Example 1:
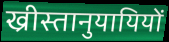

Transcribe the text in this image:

ख्रीस्तानुयायियों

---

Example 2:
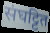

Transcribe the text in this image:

संघट्टित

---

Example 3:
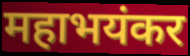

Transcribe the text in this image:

महाभयंकर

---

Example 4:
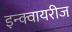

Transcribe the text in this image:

इन्क्वायरीज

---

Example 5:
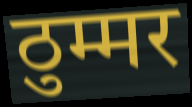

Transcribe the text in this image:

ठुम्मर